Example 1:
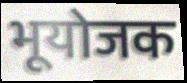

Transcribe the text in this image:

भूयोजक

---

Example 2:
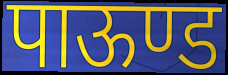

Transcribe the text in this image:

पाऊण्ड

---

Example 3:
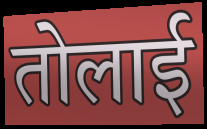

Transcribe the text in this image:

तोलाई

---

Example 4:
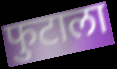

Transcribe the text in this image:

फुटाला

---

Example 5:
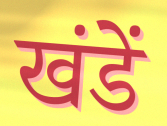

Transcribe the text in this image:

खंडें